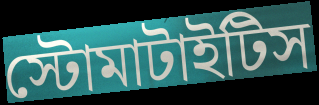
স্টোমাটাইটিস